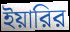
ইয়ারির